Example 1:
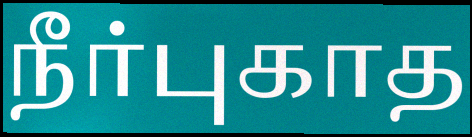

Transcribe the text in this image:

நீர்புகாத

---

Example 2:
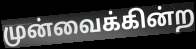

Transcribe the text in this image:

முன்வைக்கின்ற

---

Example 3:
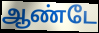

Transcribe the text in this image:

ஆண்டே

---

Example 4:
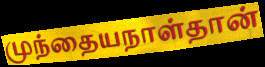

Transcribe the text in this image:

முந்தையநாள்தான்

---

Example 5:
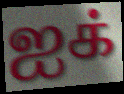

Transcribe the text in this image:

ஐக்